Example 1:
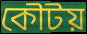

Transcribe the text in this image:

কৌটয়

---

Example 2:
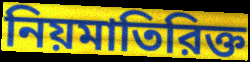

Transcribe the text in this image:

নিয়মাতিরিক্ত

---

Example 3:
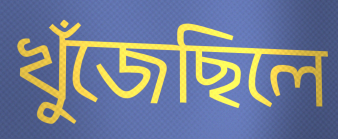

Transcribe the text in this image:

খুঁজেছিলে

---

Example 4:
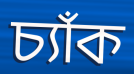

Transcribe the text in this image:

চ্যাঁক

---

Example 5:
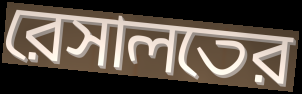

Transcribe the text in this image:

রেসালতের